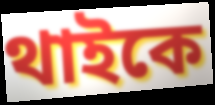
থাইকে